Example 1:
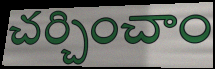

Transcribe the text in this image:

చర్చించాం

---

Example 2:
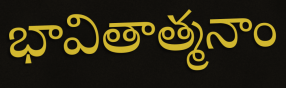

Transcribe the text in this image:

భావితాత్మనాం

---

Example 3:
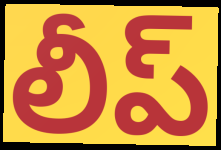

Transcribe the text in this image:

లీప్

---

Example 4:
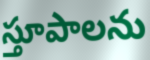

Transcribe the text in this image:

స్తూపాలను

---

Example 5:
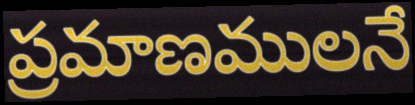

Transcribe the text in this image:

ప్రమాణములనే